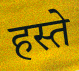
हस्ते